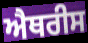
ਐਥਰੀਸ